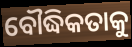
ବୌଦ୍ଧିକତାକୁ